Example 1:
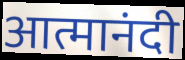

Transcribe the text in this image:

आत्मानंदी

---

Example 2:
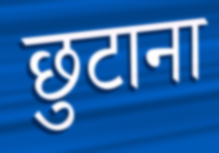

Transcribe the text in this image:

छुटाना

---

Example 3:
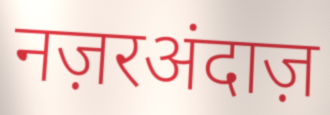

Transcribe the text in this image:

नज़रअंदाज़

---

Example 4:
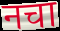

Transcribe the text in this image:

नचा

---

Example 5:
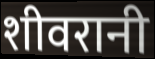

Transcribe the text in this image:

शीवरानी